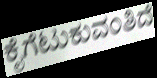
ಕೈಗೆಟುಕುವಂತಿದೆ